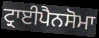
ਟ੍ਰਾਈਪੈਨਸੋਮਾ